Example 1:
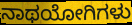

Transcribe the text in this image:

ನಾಥಯೋಗಿಗಳು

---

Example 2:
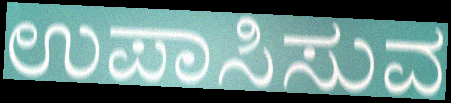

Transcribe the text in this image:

ಉಪಾಸಿಸುವ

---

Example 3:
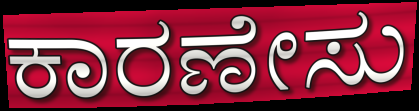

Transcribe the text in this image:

ಕಾರಣೇಸು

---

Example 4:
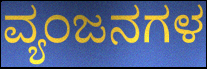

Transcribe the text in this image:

ವ್ಯಂಜನಗಳ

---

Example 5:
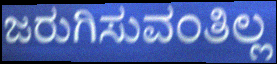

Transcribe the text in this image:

ಜರುಗಿಸುವಂತಿಲ್ಲ